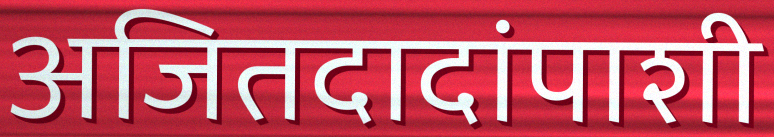
अजितदादांपाशी